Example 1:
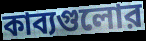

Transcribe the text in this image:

কাব্যগুলোর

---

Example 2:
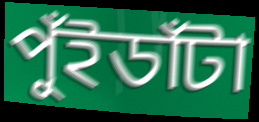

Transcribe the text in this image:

পুঁইডাঁটা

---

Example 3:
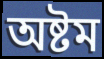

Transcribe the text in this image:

অষ্টম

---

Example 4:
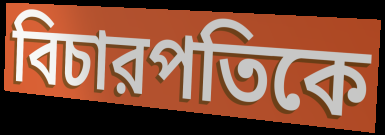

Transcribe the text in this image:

বিচারপতিকে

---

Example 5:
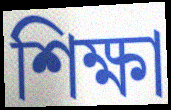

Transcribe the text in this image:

শিক্ষা